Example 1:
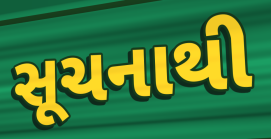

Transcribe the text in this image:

સૂચનાથી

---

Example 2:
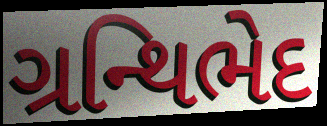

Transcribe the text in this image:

ગ્રન્થિભેદ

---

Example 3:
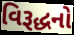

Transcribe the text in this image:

વિરૂદ્ધનો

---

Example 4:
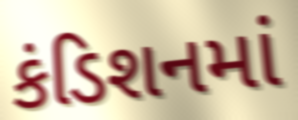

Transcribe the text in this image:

કંડિશનમાં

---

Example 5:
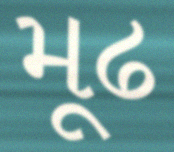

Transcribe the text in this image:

મૂઢ